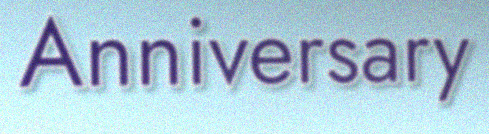
Anniversary